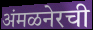
अंमळनेरची